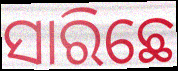
ସାରିଛେ